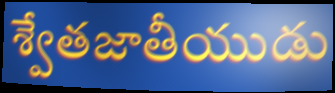
శ్వేతజాతీయుడు